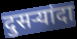
दुसऱ्यांदा